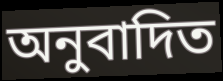
অনুবাদিত